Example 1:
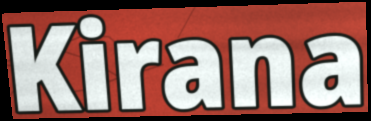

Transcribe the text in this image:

Kirana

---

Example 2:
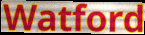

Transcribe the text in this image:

Watford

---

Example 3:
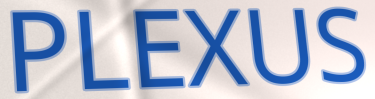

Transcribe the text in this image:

PLEXUS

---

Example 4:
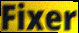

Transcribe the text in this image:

Fixer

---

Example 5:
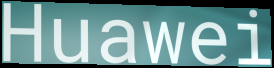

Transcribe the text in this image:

Huawei